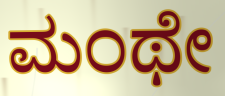
ಮಂಥೇ